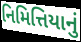
નિમિત્તિયાનું